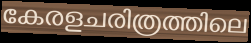
കേരളചരിത്രത്തിലെ